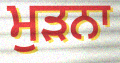
ਮੁਡ਼ਨਾ